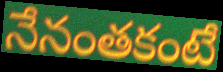
నేనంతకంటే